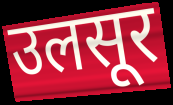
उलसूर